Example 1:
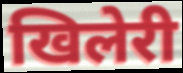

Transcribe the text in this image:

खिलेरी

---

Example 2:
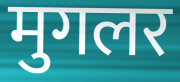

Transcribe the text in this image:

मुगलर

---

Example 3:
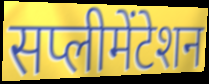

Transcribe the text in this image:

सप्लीमेंटेशन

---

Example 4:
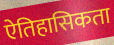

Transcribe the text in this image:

ऐतिहासिकता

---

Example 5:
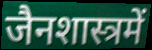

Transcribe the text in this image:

जैनशास्त्रमें